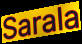
Sarala